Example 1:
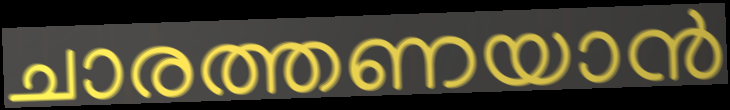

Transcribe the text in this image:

ചാരത്തണയാൻ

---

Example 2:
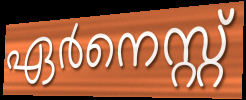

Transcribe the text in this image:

ഏർനെസ്റ്റ്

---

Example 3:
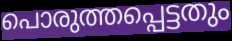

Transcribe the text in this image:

പൊരുത്തപ്പെട്ടതും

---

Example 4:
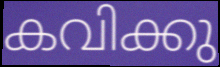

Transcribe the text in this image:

കവിക്കു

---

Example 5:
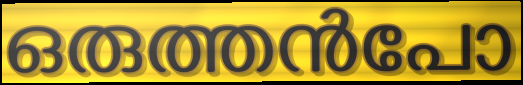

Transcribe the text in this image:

ഒരുത്തൻപോ